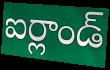
ఐర్లాండ్